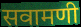
सवामणी